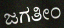
ಜಗತೀಂ